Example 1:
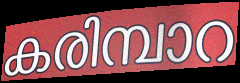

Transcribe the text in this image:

കരിമ്പാറ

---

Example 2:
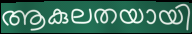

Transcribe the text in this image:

ആകുലതയായി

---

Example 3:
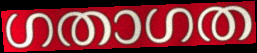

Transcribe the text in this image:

ഗതാഗത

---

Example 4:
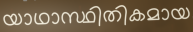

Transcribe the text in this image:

യാഥാസ്ഥിതികമായ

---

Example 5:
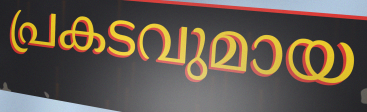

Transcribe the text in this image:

പ്രകടവുമായ